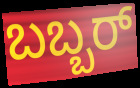
ಬಬ್ಬರ್